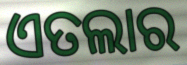
ଏତଲାର